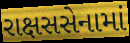
રાક્ષસસેનામાં